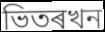
ভিতৰখন